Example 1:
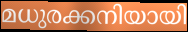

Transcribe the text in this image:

മധുരക്കനിയായി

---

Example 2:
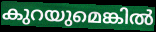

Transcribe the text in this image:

കുറയുമെങ്കിൽ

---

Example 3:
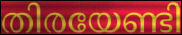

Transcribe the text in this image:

തിരയേണ്ടി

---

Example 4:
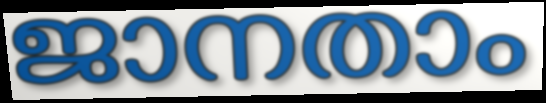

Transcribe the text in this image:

ജാനതാം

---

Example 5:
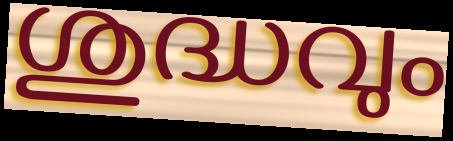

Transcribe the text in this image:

ശുദ്ധവും